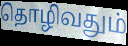
தொழிவதும்